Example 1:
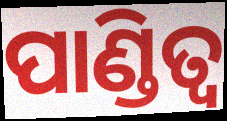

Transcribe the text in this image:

ପାଣ୍ଡିତ୍ୱ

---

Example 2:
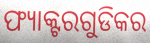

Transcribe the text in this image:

ଫ୍ୟାକ୍ଟରଗୁଡିକର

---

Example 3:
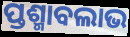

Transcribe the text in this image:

ପ୍ତଶ୍ମାବଲାଭ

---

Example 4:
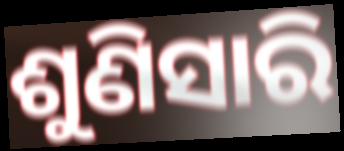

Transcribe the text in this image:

ଶୁଣିସାରି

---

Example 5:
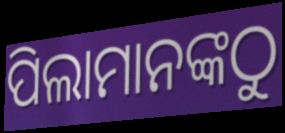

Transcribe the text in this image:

ପିଲାମାନଙ୍କଠୁ